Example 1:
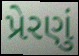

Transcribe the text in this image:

પ્રેરણું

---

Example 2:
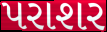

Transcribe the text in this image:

પરાશર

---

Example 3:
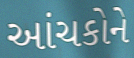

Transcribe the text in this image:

આંચકોને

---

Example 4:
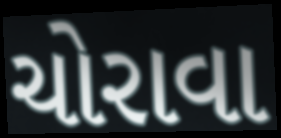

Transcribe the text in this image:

ચોરાવા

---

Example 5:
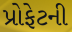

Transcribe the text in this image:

પ્રોફેટની